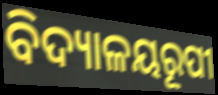
ବିଦ୍ୟାଳୟରୂପୀ